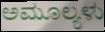
ಅಮೂಲ್ಯಳು